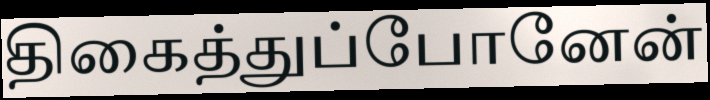
திகைத்துப்போனேன்